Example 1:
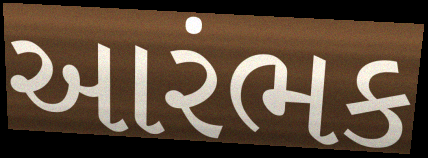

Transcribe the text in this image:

આરંભક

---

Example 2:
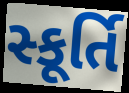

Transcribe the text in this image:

સ્કૂર્તિ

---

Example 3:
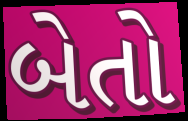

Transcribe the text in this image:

બેતો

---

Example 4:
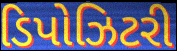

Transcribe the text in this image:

ડિપોઝિટરી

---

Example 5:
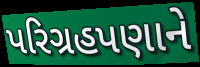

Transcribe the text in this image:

પરિગ્રહપણાને